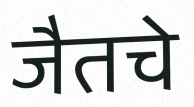
जैतचे